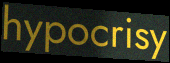
hypocrisy